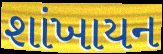
શાંખાયન